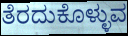
ತೆರದುಕೊಳ್ಳುವ